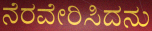
ನೆರವೇರಿಸಿದನು